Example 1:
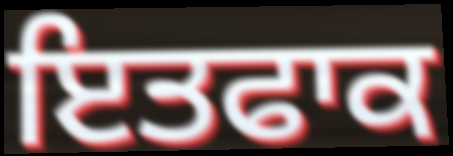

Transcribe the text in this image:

ਇਤਫਾਕ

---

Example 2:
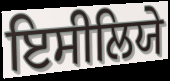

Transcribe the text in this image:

ਇਸੀਲਿਯੇ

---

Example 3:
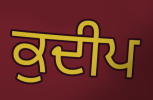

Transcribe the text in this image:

ਕੁਦੀਪ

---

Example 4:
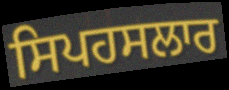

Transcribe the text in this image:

ਸਿਪਹਸਲਾਰ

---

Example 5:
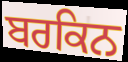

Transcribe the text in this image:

ਬਰਕਿਨ